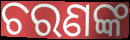
ଚରଣଙ୍କ